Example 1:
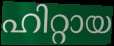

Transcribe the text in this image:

ഹിറ്റായ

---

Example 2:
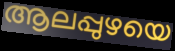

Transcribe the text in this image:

ആലപ്പുഴയെ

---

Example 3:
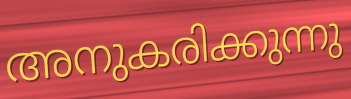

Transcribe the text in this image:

അനുകരിക്കുന്നു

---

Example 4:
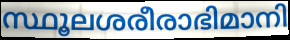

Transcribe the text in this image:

സ്ഥൂലശരീരാഭിമാനി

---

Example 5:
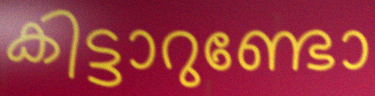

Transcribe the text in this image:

കിട്ടാറുണ്ടോ